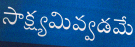
సాక్ష్యమివ్వడమే